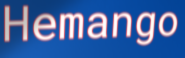
Hemango